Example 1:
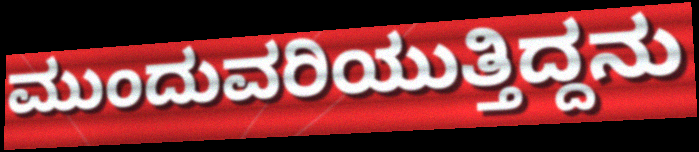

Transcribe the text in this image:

ಮುಂದುವರಿಯುತ್ತಿದ್ದನು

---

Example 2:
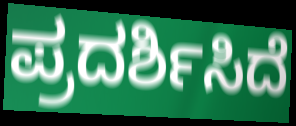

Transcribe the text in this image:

ಪ್ರದರ್ಶಿಸಿದೆ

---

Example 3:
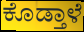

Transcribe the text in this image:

ಕೊಡ್ತಾಳೆ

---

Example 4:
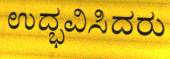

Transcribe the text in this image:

ಉದ್ಭವಿಸಿದರು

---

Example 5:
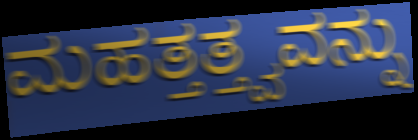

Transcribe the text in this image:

ಮಹತ್ತತ್ತ್ವವನ್ನು